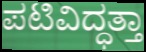
ಪಟಿವಿದ್ಧತ್ತಾ